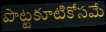
పొట్టకూటికోసమే